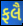
ફલૈ